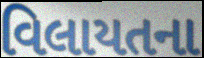
વિલાયતના